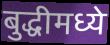
बुद्धीमध्ये